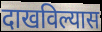
दाखविल्यास